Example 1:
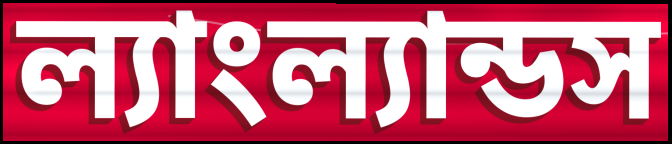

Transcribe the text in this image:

ল্যাংল্যান্ডস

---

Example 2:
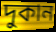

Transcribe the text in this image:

দুকান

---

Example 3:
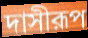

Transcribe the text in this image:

দাসীরূপ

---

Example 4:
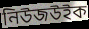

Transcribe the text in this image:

নিউজউইক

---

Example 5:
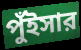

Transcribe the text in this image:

পুঁইসার